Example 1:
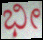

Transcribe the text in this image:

ಭೀ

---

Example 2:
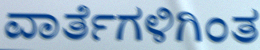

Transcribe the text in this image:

ವಾರ್ತೆಗಳಿಗಿಂತ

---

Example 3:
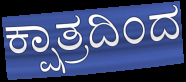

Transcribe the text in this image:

ಕ್ಷಾತ್ರದಿಂದ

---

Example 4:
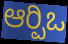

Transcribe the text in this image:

ಆರ್‍ಪಿಒ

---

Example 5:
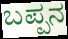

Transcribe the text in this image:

ಬಪ್ಪನ